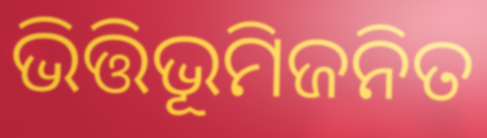
ଭିତ୍ତିଭୂମିଜନିତ